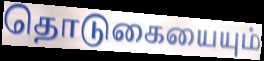
தொடுகையையும்